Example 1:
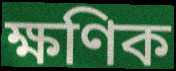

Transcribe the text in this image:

ক্ষণিক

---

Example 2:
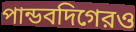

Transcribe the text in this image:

পান্ডবদিগেরও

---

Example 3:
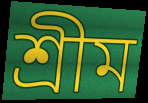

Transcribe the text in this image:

শ্রীম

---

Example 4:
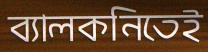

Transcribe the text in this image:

ব্যালকনিতেই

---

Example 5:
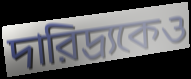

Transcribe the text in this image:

দারিদ্র্যকেও